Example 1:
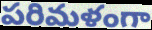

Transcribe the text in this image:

పరిమళంగా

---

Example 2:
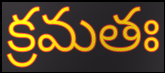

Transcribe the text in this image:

క్రమతః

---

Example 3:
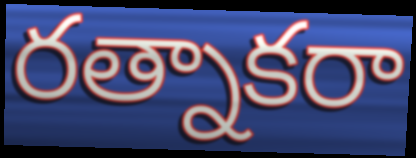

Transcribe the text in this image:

రత్నాకరా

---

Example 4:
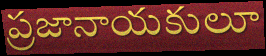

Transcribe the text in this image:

ప్రజానాయకులూ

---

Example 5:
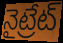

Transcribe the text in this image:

నైట్రేట్